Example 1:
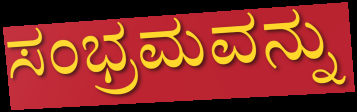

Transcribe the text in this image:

ಸಂಭ್ರಮವನ್ನು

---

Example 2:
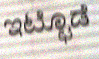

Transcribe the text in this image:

ಇಟ್ಟೊಡೆ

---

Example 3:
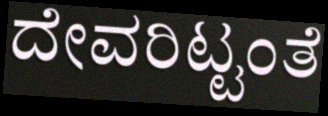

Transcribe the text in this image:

ದೇವರಿಟ್ಟಂತೆ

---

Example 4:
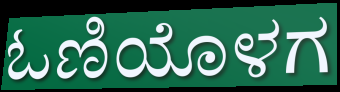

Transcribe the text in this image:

ಓಣಿಯೊಳಗ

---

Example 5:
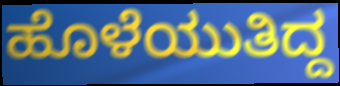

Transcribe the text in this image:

ಹೊಳೆಯುತಿದ್ದ